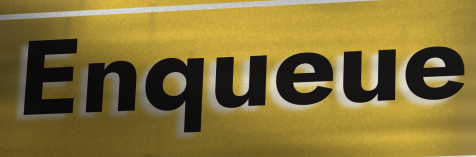
Enqueue